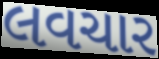
લવચાર